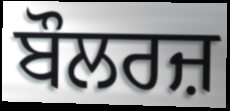
ਬੌਲਰਜ਼